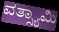
ವತ್ಸ್ಯಾಮಿ